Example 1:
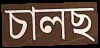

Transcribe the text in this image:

চালছ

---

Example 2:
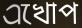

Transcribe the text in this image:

এখোপ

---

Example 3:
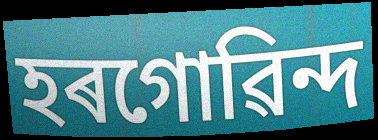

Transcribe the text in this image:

হৰগোৱিন্দ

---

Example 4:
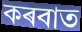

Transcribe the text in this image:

কৰবাত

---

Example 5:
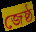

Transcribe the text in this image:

জেষ্ঠ